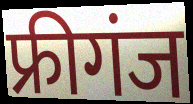
फ्रीगंज